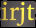
irjt